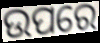
ଉପରେ